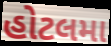
હોટલમા